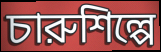
চারুশিল্পে